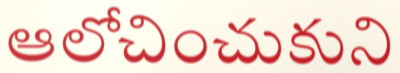
ఆలోచించుకుని